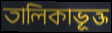
তালিকাভূক্ত